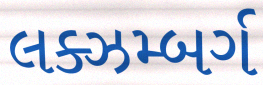
લક્ઝમ્બર્ગ